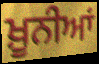
ਖ਼ੂਨੀਆਂ